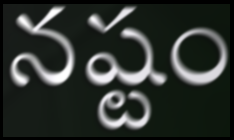
నష్టం